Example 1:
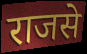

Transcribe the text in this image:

राजसे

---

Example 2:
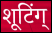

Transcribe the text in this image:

शूटिंग्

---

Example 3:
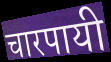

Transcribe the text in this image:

चारपायी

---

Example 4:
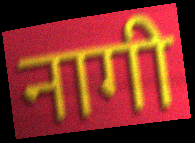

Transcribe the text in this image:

नागी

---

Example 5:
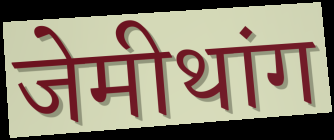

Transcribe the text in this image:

जेमीथांग